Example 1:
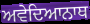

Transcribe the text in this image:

ਅਵੇਦਿਆਨਾਥ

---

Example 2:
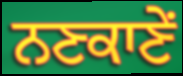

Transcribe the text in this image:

ਨਣਕਾਣੇਂ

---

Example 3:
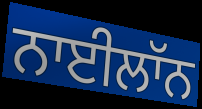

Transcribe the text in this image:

ਨਾਈਲਾੱਨ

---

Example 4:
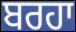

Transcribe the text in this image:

ਬਰਹਾ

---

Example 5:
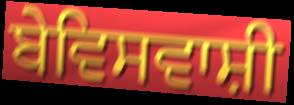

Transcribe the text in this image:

ਬੇਵਿਸਵਾਸ਼ੀ